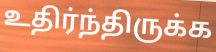
உதிர்ந்திருக்க